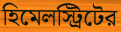
হিমেলস্ট্রিটের